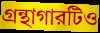
গ্রন্থাগারটিও